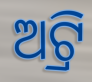
ଅଟ୍ରି